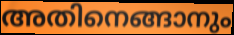
അതിനെങ്ങാനും